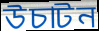
উচাটন